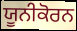
ਯੂਨੀਕੋਰਨ